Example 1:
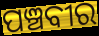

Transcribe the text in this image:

ପଞ୍ଚବୀର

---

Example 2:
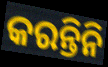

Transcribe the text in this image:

କରନ୍ତିନି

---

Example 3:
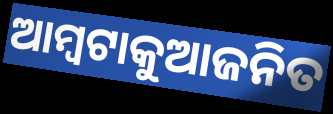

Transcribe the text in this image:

ଆମ୍ବଟାକୁଆଜନିତ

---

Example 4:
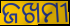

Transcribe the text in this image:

ଜଖମୀ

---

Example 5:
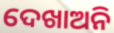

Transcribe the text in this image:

ଦେଖାଅନି